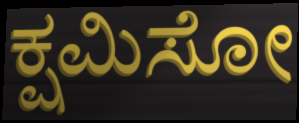
ಕ್ಷಮಿಸೋ